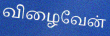
விழைவேன்